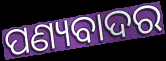
ପଣ୍ୟବାଦର